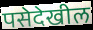
पसेदेखील